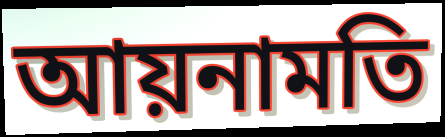
আয়নামতি